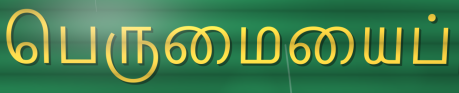
பெருமையைப்